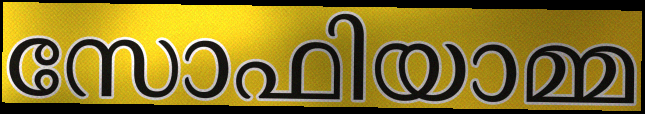
സോഫിയാമ്മ